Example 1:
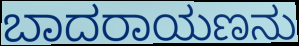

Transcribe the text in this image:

ಬಾದರಾಯಣನು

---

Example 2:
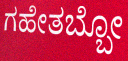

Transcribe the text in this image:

ಗಹೇತಬ್ಬೋ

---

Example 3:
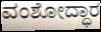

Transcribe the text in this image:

ವಂಶೋದ್ಧಾರ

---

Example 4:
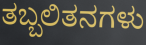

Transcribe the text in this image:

ತಬ್ಬಲಿತನಗಳು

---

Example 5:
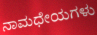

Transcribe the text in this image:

ನಾಮಧೇಯಗಳು